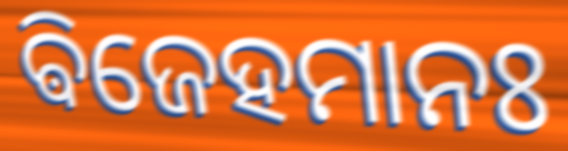
ଵିଜେହମାନଃ